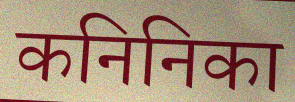
कनिनिका